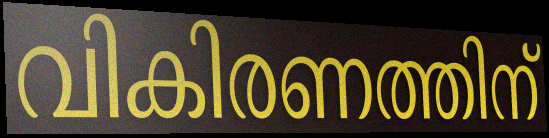
വികിരണത്തിന്